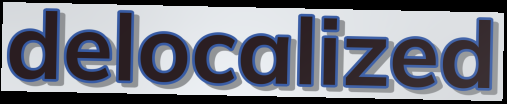
delocalized